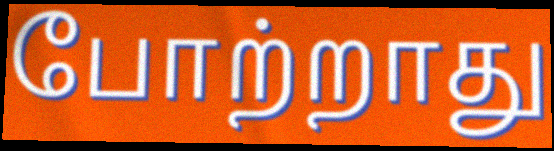
போற்றாது